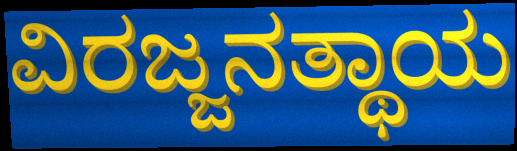
ವಿರಜ್ಜನತ್ಥಾಯ